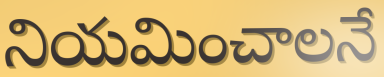
నియమించాలనే